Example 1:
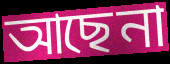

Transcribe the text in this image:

আছেনা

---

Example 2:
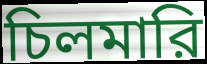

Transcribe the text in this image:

চিলমারি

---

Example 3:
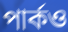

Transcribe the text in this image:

পার্কও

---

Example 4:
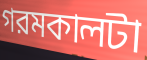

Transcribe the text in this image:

গরমকালটা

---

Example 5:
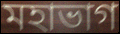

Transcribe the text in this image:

মহাভাগ